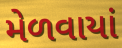
મેળવાયાં